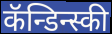
कॅन्डिन्स्की